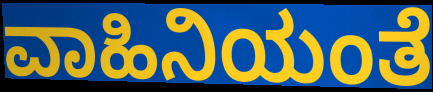
ವಾಹಿನಿಯಂತೆ